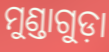
ମୁଣ୍ଡାଗୁଡ଼ା